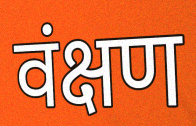
वंक्षण